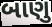
બાણુ